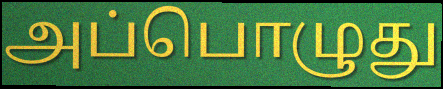
அப்பொழுது